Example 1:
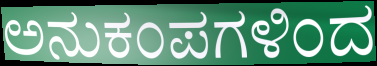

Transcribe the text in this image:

ಅನುಕಂಪಗಳಿಂದ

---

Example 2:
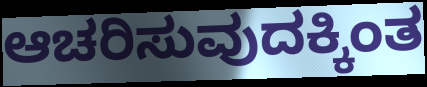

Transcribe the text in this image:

ಆಚರಿಸುವುದಕ್ಕಿಂತ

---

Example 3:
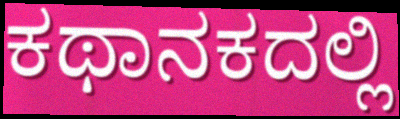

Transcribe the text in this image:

ಕಥಾನಕದಲ್ಲಿ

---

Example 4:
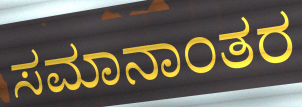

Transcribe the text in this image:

ಸಮಾನಾಂತರ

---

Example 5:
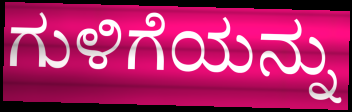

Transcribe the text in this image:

ಗುಳಿಗೆಯನ್ನು